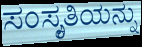
ಸಂಸ್ಕೃತಿಯನ್ನು